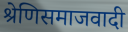
श्रेणिसमाजवादी